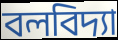
বলবিদ্যা